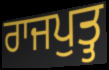
ਰਾਜਪੁਤ੍ਤ